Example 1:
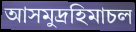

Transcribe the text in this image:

আসমুদ্রহিমাচল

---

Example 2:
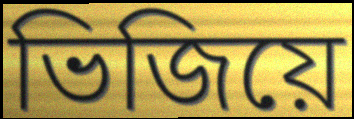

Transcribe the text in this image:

ভিজিয়ে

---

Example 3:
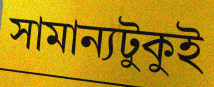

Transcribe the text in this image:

সামান্যটুকুই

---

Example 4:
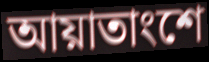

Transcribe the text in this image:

আয়াতাংশে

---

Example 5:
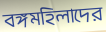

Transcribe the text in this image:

বঙ্গমহিলাদের